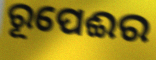
ରୂପେଈର